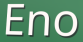
Eno